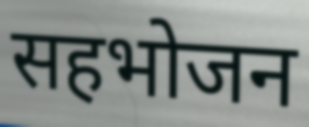
सहभोजन